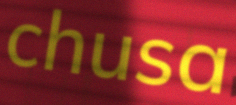
chusa